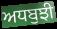
ਅਧਬੁਝੀ